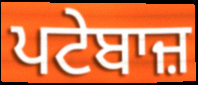
ਪਟੇਬਾਜ਼